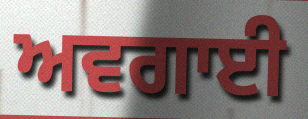
ਅਵਗਾਈ